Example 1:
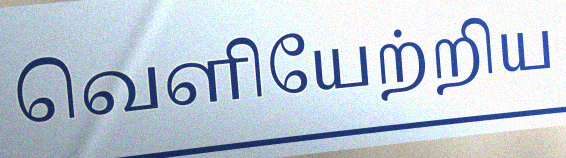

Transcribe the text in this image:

வெளியேற்றிய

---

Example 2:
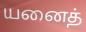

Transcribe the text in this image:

யனைத்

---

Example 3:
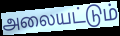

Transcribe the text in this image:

அலையட்டும்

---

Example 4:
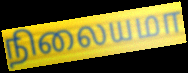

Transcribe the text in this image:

நிலையமா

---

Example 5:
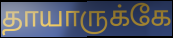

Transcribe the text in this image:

தாயாருக்கே